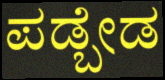
ಪಡ್ಬೇಡ